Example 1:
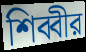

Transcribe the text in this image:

শিব্বীর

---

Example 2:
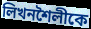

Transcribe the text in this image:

লিখনশৈলীকে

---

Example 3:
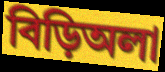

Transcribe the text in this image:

বিড়িঅলা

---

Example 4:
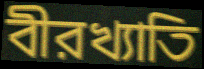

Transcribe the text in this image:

বীরখ্যাতি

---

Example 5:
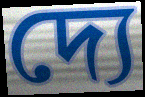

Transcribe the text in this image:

দ্যে